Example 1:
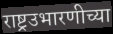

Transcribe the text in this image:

राष्ट्रउभारणीच्या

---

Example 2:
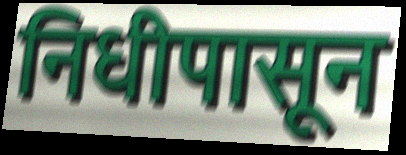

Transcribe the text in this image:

निधीपासून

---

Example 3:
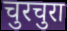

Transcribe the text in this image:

चुरचुरा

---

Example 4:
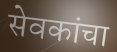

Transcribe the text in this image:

सेवकांचा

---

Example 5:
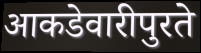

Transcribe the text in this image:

आकडेवारीपुरते